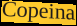
Copeina